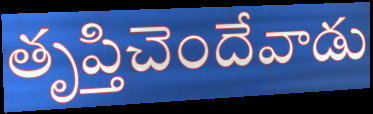
తృప్తిచెందేవాడు